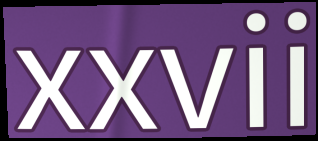
xxvii